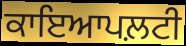
ਕਾਇਆਪਲ਼ਟੀ